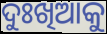
ଦୁଃଖିଆକୁ